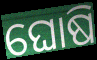
ଘୋଷି